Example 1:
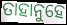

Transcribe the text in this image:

ତାହାନୁହେ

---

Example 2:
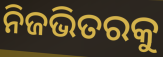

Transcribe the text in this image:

ନିଜଭିତରକୁ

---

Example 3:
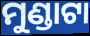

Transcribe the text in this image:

ମୁଣ୍ଡାଟା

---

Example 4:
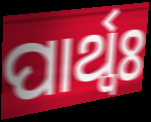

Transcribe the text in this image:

ପାର୍ଥ୍ବଃ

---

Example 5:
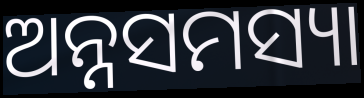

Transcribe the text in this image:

ଅନ୍ନସମସ୍ୟା